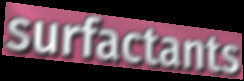
surfactants